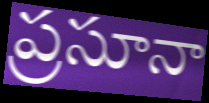
ప్రసూనా